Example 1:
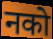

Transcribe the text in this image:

नको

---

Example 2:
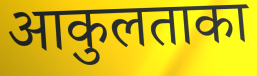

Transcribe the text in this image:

आकुलताका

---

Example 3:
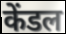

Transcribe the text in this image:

केंडल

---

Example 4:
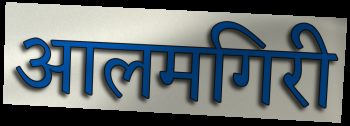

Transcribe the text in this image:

आलमगिरी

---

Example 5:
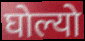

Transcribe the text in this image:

घोल्यो